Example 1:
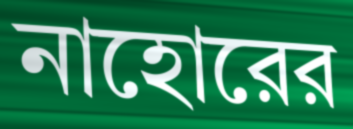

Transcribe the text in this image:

নাহোরের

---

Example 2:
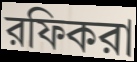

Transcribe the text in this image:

রফিকরা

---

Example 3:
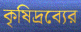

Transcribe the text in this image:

কৃষিদ্রব্যের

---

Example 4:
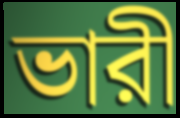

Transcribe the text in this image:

ভারী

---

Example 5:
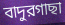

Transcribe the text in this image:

বাদুরগাছা